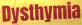
Dysthymia